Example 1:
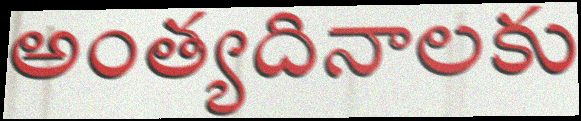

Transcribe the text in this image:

అంత్యదినాలకు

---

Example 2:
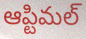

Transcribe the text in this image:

ఆప్టిమల్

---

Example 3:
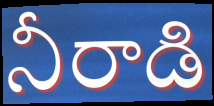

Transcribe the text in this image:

నీరాడి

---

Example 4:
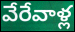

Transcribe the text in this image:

వేరేవాళ్ల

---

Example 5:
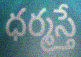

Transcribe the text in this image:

ధర్మస్తే